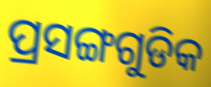
ପ୍ରସଙ୍ଗଗୁଡିକ